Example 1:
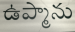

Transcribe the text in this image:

ఉప్మాను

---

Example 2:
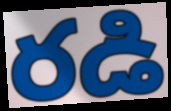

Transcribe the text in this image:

రడి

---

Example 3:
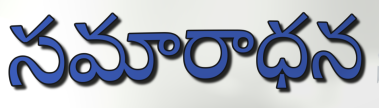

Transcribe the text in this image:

సమారాధన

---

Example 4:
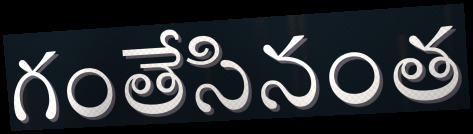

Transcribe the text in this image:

గంతేసినంత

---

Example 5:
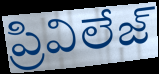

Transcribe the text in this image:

ప్రివిలేజ్